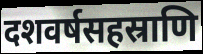
दशवर्षसहस्राणि